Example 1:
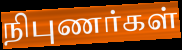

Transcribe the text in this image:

நிபுணர்கள்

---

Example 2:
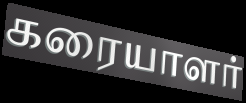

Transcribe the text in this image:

கரையாளர்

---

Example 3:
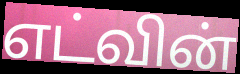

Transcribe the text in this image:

எட்வின்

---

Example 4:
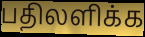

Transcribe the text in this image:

பதிலளிக்க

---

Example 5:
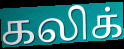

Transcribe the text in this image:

கலிக்